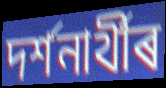
দৰ্শনাৰ্থীৰ